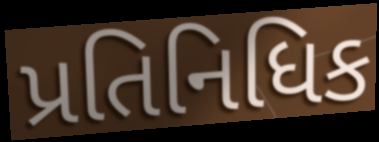
પ્રતિનિધિક